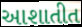
આશાતીત